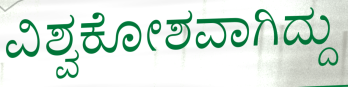
ವಿಶ್ವಕೋಶವಾಗಿದ್ದು